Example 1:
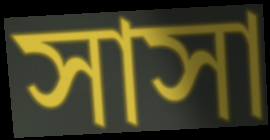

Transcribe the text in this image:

সাসা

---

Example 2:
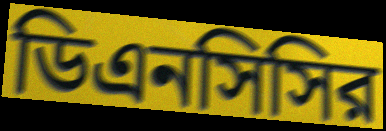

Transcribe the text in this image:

ডিএনসিসির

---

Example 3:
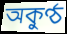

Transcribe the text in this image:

অকুণ্ঠ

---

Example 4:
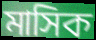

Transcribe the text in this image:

মাসিক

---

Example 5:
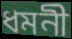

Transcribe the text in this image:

ধমনী